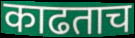
काढताच